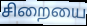
சிறையை